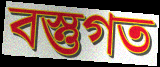
বস্তুগত